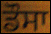
ਡੌਸਾ